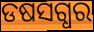
ଡଷସଗ୍ଧର